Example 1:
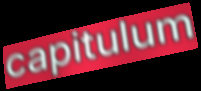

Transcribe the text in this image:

capitulum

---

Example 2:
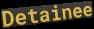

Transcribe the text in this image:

Detainee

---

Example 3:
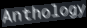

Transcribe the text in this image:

Anthology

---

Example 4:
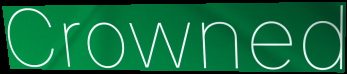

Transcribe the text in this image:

Crowned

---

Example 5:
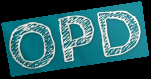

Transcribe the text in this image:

OPD